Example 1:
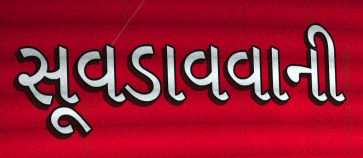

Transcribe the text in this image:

સૂવડાવવાની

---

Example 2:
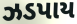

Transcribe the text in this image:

ઝડપાય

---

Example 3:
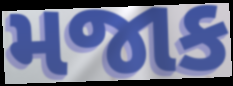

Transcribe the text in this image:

મજાક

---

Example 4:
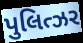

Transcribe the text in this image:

પુલિત્ઝર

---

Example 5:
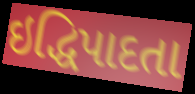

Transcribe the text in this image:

ઇદ્ધિપાદતા